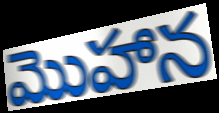
మొహాన